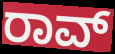
ರಾವ್